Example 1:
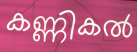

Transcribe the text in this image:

കണ്ണികൽ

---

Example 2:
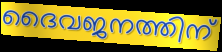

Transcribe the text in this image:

ദൈവജനത്തിന്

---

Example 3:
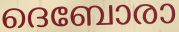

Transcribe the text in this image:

ദെബോരാ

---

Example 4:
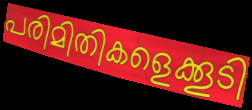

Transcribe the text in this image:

പരിമിതികളെക്കൂടി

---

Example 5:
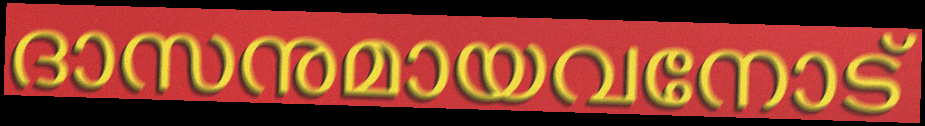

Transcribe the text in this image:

ദാസനുമായവനോട്